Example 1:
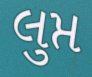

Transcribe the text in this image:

લુપ્ત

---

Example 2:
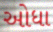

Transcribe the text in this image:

ઓધા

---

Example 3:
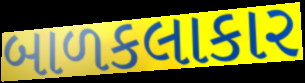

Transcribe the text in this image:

બાળકલાકાર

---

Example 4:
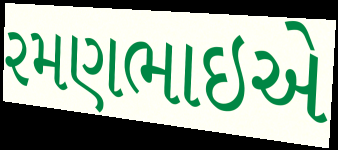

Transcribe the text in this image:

રમણભાઇએ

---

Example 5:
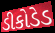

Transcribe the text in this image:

ડીકોડેડ